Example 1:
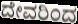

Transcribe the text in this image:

ದೇವರಿಂದ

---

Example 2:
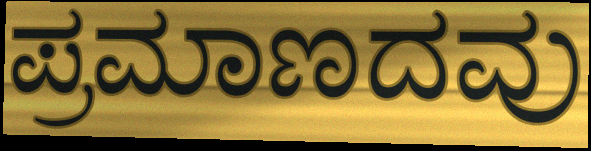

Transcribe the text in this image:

ಪ್ರಮಾಣದವು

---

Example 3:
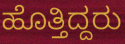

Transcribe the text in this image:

ಹೊತ್ತಿದ್ದರು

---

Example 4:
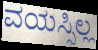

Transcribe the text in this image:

ವಯಸ್ಸಿಲ್ಲ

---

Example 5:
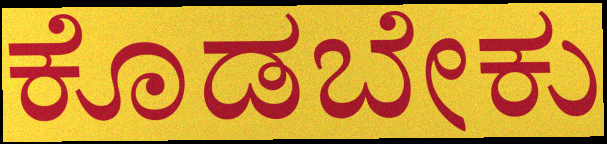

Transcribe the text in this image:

ಕೊಡಬೇಕು